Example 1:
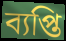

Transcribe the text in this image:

ব্যপ্তি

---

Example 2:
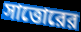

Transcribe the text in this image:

সাত্তোরের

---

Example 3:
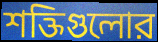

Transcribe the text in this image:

শক্তিগুলোর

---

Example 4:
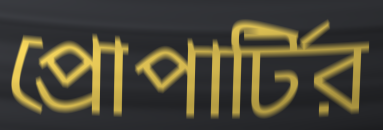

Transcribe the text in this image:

প্রোপার্টির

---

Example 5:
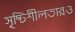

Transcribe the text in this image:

সৃষ্টিশীলতারও